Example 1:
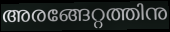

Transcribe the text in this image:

അരങ്ങേറ്റത്തിനു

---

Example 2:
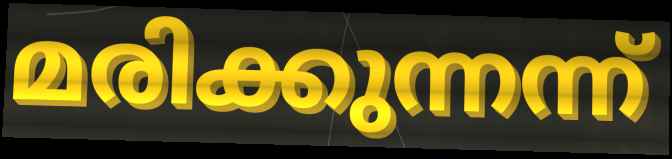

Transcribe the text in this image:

മരിക്കുന്നന്ന്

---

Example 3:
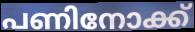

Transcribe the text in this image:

പണിനോക്ക്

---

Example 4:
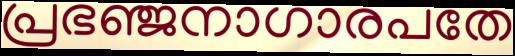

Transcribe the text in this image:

പ്രഭഞ്ജനാഗാരപതേ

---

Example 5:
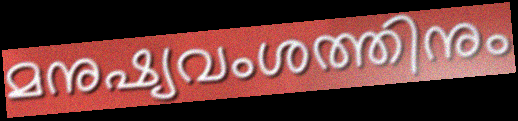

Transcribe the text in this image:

മനുഷ്യവംശത്തിനും